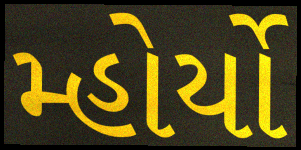
મ્હોર્યો